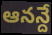
ఆనన్దే